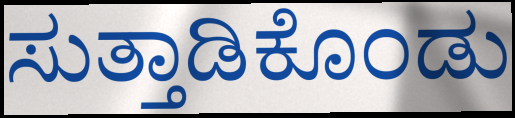
ಸುತ್ತಾಡಿಕೊಂಡು